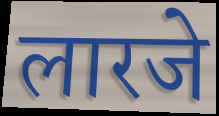
लारजे